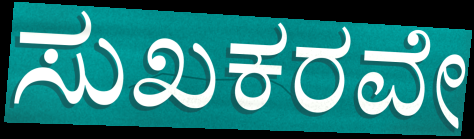
ಸುಖಕರವೇ